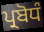
ਪ੍ਰਬੋਧੰ